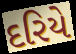
દરિયે